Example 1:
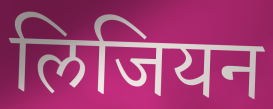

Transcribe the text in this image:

लिजियन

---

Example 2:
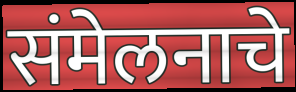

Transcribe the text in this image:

संमेलनाचे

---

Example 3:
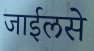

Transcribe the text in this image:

जाईलसे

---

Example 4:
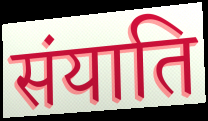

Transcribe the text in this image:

संयाति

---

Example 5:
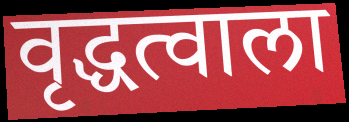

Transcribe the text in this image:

वृद्धत्वाला